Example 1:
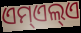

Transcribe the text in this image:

ଏମ୍ଏଲ୍ଏ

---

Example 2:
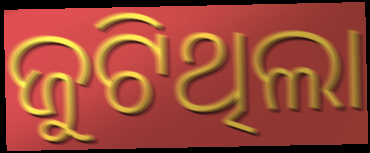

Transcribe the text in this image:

ଜୁଟିଥିଲା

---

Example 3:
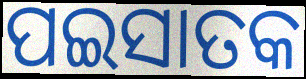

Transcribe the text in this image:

ପଇସାତକ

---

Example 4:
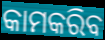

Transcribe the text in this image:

କାମକରିବ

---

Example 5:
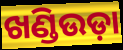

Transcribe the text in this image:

ଖଣ୍ଡିଉଡ଼ା